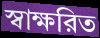
স্বাক্ষরিত